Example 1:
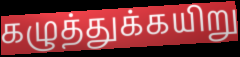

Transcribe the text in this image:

கழுத்துக்கயிறு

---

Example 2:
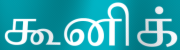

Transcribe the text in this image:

கூனிக்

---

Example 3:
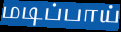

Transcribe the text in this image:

மடிப்பாய்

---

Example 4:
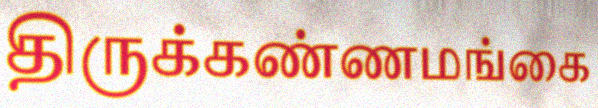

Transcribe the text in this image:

திருக்கண்ணமங்கை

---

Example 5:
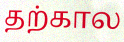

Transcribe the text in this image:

தற்கால